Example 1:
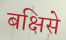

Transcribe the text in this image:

बक्षिसे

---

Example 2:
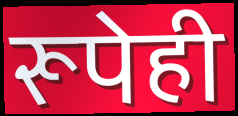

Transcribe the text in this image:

रूपेही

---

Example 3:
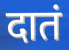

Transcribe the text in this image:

दातं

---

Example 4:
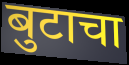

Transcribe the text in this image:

बुटाचा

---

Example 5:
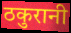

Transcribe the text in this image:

ठकुरानी